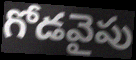
గోడవైపు